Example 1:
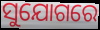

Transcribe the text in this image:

ସୁଯୋଗରେ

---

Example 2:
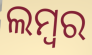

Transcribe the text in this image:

ଲମ୍ବର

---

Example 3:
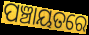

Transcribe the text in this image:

ପଞ୍ଚାୟତରେ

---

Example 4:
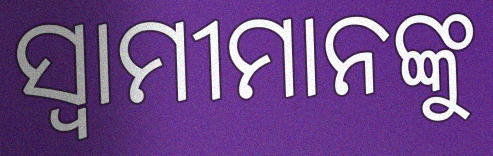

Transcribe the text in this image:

ସ୍ଵାମୀମାନଙ୍କୁ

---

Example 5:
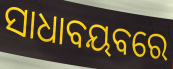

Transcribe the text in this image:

ସାଧାବୟବରେ